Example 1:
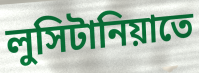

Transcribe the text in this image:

লুসিটানিয়াতে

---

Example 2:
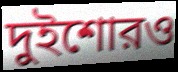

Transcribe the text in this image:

দুইশোরও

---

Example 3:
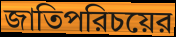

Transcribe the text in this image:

জাতিপরিচয়ের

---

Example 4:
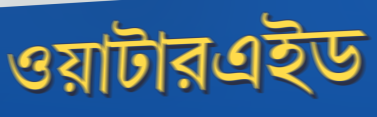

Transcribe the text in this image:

ওয়াটারএইড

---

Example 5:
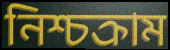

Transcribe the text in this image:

নিশ্চক্রাম